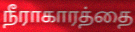
நீராகாரத்தை